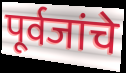
पूर्वजांचे